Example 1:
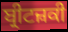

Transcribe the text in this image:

ਬ੍ਰੀਟਜ਼ਕੀ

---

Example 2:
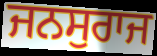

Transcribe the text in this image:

ਜਨਸੁਰਾਜ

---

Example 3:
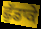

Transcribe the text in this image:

ਛੁੱਡਾਕੇ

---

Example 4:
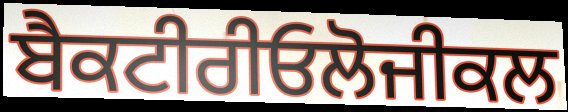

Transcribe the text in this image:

ਬੈਕਟੀਰੀਓਲੋਜੀਕਲ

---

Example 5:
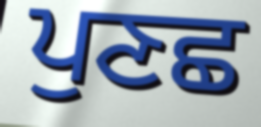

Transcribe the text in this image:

ਪੁਣਛ